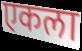
एकला